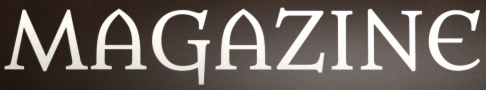
MAGAZINE